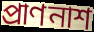
প্রাণনাশ